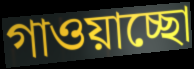
গাওয়াচ্ছো